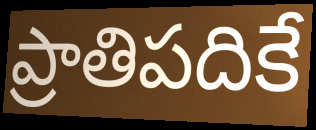
ప్రాతిపదికే